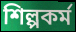
শিল্পকৰ্ম